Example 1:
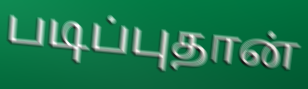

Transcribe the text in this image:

படிப்புதான்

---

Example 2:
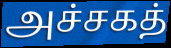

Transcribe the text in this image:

அச்சகத்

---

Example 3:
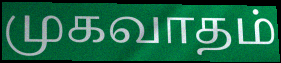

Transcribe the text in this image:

முகவாதம்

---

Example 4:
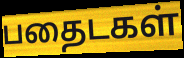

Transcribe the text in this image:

பதைடகள்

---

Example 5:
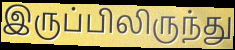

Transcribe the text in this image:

இருப்பிலிருந்து